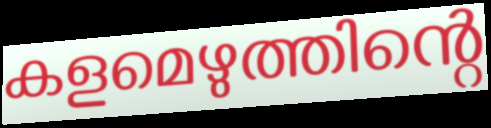
കളമെഴുത്തിന്റെ